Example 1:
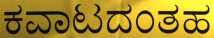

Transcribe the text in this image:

ಕವಾಟದಂತಹ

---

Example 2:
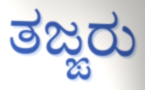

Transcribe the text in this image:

ತಜ್ಙರು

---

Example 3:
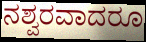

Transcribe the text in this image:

ನಶ್ವರವಾದರೂ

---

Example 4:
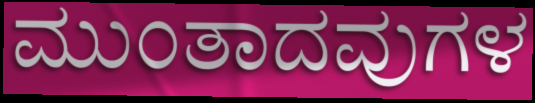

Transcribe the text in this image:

ಮುಂತಾದವುಗಳ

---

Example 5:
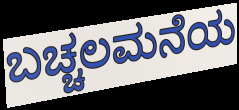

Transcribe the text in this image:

ಬಚ್ಚಲಮನೆಯ